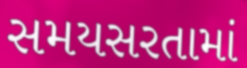
સમયસરતામાં